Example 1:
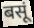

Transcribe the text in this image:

बसूं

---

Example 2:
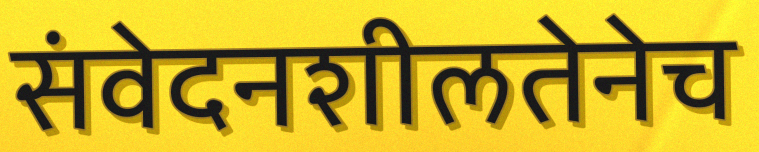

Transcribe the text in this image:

संवेदनशीलतेनेच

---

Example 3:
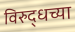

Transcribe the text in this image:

विरुद्धच्या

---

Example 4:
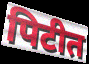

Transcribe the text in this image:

पिटीत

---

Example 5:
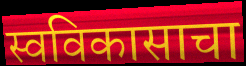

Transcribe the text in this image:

स्वविकासाचा